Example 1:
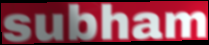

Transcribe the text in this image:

subham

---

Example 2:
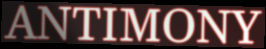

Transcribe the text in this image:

ANTIMONY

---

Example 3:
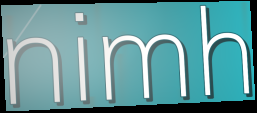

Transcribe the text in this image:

nimh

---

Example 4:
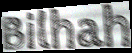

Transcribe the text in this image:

Bilhah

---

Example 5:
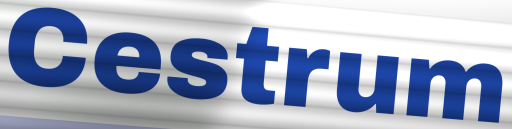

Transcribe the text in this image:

Cestrum